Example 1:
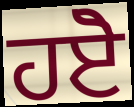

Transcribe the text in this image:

ਹਏੋ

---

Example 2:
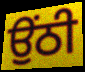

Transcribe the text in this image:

ਉਂਠੀ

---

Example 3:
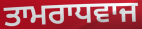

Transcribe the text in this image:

ਤਾਮਰਾਧਵਾਜ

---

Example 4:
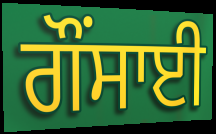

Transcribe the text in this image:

ਗੌਂਸਾਈ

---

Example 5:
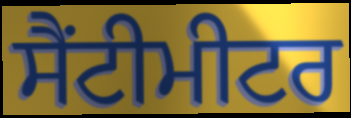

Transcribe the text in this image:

ਸੈਂਟੀਮੀਟਰ